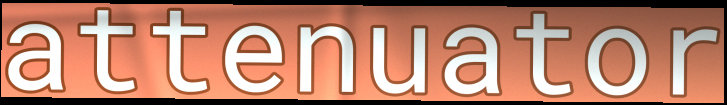
attenuator